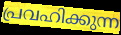
പ്രവഹിക്കുന്ന